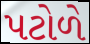
પટોળે